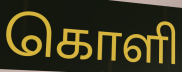
கொளி